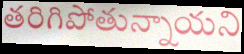
తరిగిపోతున్నాయని